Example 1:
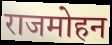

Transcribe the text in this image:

राजमोहन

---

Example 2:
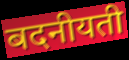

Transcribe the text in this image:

बदनीयती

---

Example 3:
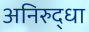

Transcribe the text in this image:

अनिरुद्धा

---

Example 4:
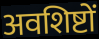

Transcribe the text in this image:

अवशिष्टों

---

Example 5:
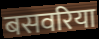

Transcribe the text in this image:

बसवरिया